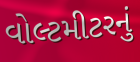
વોલ્ટમીટરનું